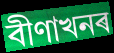
বীণাখনৰ